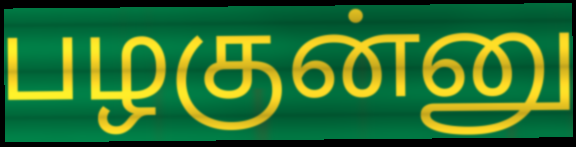
பழகுன்னு